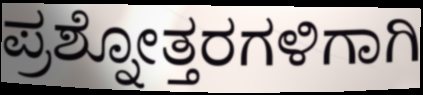
ಪ್ರಶ್ನೋತ್ತರಗಳಿಗಾಗಿ